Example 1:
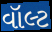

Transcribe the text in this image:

વૉલ્ટ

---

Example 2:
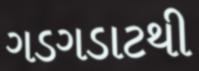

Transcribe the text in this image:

ગડગડાટથી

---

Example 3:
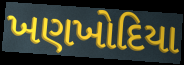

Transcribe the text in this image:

ખણખોદિયા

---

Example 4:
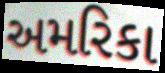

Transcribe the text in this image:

અમરિકા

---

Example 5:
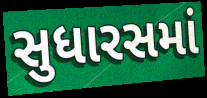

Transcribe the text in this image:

સુધારસમાં